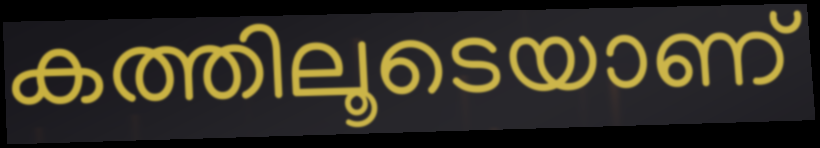
കത്തിലൂടെയാണ്